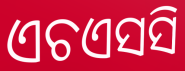
ଏଚଏସସି